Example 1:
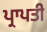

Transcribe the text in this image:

ਪ੍ਰਾਪਤੀ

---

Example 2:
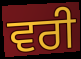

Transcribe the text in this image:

ਵਰੀ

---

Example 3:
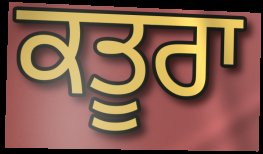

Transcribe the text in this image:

ਕਤੂਰਾ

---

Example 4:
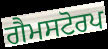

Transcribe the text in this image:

ਗੈਮਸਟੋਰਪ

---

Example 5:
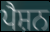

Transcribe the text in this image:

ਪੈਸ਼ਨ